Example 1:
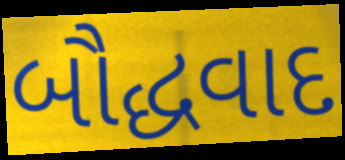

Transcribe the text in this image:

બૌદ્ધવાદ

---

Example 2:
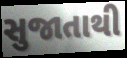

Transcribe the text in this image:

સુજાતાથી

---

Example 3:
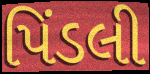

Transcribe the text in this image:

પિંડલી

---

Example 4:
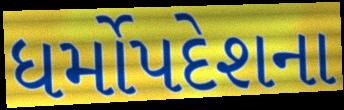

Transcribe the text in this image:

ધર્મોપદેશના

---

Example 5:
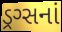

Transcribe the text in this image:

ડ્રગ્સનાં